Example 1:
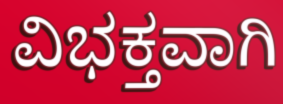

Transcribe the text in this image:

ವಿಭಕ್ತವಾಗಿ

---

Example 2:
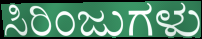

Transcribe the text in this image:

ಸಿರಿಂಜುಗಳು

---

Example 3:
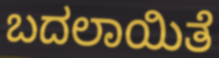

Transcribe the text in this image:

ಬದಲಾಯಿತೆ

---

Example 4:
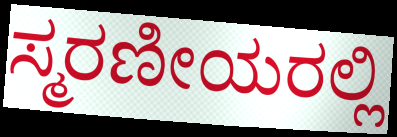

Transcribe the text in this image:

ಸ್ಮರಣೀಯರಲ್ಲಿ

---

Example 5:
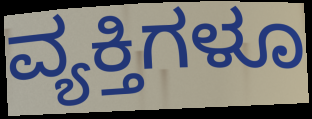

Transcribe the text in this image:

ವ್ಯಕ್ತಿಗಳೂ